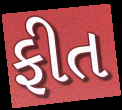
ફીત